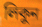
লিকুন